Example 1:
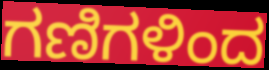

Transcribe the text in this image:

ಗಣಿಗಳಿಂದ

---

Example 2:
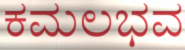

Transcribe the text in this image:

ಕಮಲಭವ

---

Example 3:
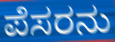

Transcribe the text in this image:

ಪೆಸರನು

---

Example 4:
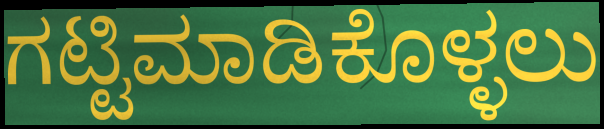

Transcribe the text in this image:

ಗಟ್ಟಿಮಾಡಿಕೊಳ್ಳಲು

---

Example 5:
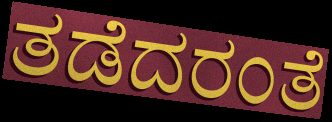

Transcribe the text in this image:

ತಡೆದರಂತೆ